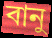
বানু